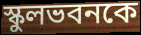
স্কুলভবনকে